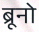
ब्रूनो